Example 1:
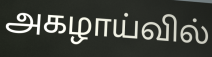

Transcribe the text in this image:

அகழாய்வில்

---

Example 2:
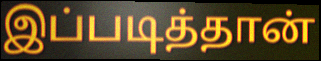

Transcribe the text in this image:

இப்படித்தான்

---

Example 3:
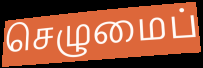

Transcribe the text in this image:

செழுமைப்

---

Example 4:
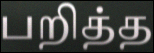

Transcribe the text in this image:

பறித்த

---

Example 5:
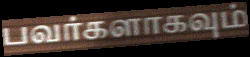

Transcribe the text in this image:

பவர்களாகவும்